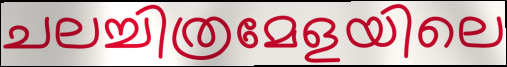
ചലച്ചിത്രമേളയിലെ